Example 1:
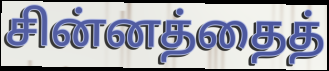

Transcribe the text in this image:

சின்னத்தைத்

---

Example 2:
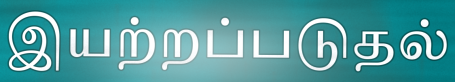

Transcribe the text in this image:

இயற்றப்படுதல்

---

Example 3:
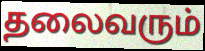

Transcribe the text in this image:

தலைவரும்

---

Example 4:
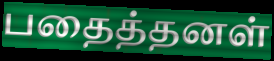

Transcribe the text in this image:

பதைத்தனள்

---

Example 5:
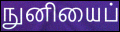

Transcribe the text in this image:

நுனியைப்